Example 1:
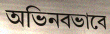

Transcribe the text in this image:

অভিনবভাবে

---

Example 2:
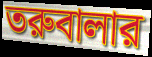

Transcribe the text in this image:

তরুবালার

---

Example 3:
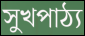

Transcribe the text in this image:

সুখপাঠ্য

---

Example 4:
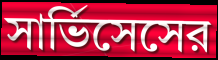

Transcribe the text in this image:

সার্ভিসেসের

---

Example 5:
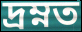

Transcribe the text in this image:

দ্রম্নত